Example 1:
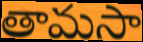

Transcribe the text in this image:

తామసా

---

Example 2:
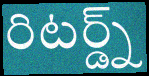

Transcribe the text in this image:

రిటర్డ్న్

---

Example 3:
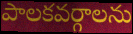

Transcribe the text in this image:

పాలకవర్గాలను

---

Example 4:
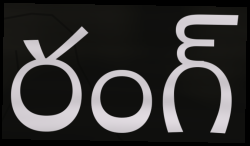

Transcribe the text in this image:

రంగ్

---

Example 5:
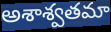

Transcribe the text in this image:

అశాశ్వతమా